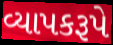
વ્યાપકરૂપે